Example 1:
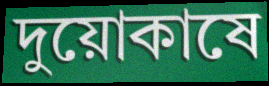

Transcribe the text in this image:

দুয়োকাষে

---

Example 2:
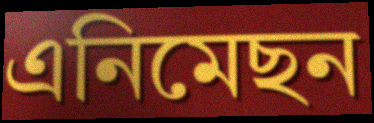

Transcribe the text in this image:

এনিমেছন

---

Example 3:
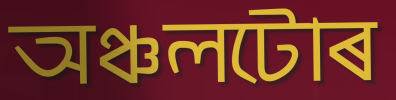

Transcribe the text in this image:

অঞ্চলটোৰ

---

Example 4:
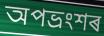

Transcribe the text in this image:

অপভ্ৰংশৰ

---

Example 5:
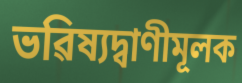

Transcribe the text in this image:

ভৱিষ্যদ্বাণীমূলক